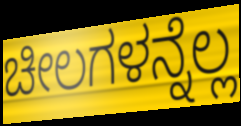
ಚೀಲಗಳನ್ನೆಲ್ಲ